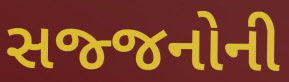
સજ્જનોની